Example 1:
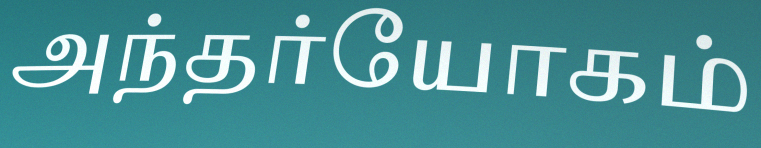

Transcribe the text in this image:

அந்தர்யோகம்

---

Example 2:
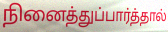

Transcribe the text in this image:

நினைத்துப்பார்த்தால்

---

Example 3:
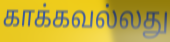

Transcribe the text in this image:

காக்கவல்லது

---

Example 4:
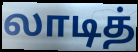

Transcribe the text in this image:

லாடித்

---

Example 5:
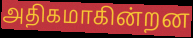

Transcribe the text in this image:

அதிகமாகின்றன